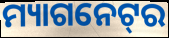
ମ୍ୟାଗନେଟ୍‌ର